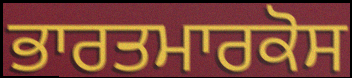
ਭਾਰਤਮਾਰਕੋਸ